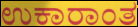
ಉಕಾರಾಂತ